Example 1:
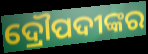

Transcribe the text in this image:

ଦ୍ରୌପଦୀଙ୍କର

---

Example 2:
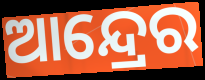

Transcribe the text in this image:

ଆନ୍ଦ୍ରେର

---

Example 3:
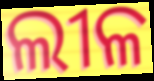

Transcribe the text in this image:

ଲୀଳ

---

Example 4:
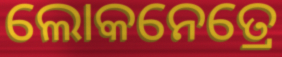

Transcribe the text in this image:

ଲୋକନେତ୍ରେ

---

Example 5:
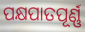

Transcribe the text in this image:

ପକ୍ଷପାତପୂର୍ଣ୍ଣ